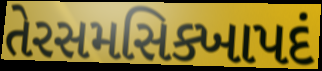
તેરસમસિક્ખાપદં